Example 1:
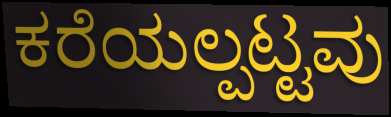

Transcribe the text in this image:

ಕರೆಯಲ್ಪಟ್ಟವು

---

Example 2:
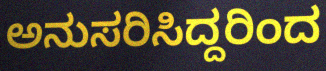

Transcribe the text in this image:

ಅನುಸರಿಸಿದ್ದರಿಂದ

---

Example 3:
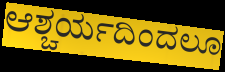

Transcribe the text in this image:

ಆಶ್ಚರ್ಯದಿಂದಲೂ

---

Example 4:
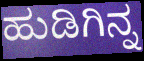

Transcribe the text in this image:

ಹುಡಿಗಿನ್ನ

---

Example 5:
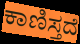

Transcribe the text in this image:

ಕಾಣಿಸ್ತದೆ